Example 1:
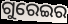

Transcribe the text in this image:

ଗୁରେଇର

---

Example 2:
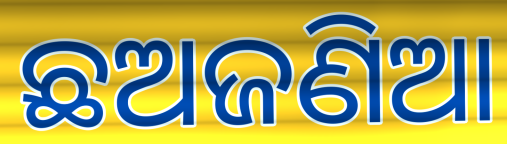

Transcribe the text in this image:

ଛଅଜଣିଆ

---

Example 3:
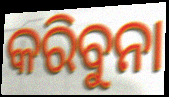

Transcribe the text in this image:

କରିବୁନା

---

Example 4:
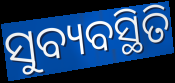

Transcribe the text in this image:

ସୁବ୍ୟବସ୍ଥିତି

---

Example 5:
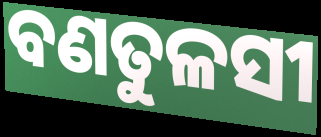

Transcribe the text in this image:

ବଣତୁଳସୀ